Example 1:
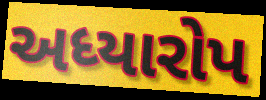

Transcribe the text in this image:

અધ્યારોપ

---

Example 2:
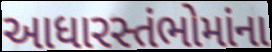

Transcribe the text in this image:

આધારસ્તંભોમાંના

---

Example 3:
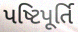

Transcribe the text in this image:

પષ્ટિપૂર્તિ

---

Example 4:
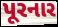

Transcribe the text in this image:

પૂરનાર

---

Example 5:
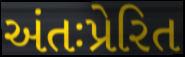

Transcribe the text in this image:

અંતઃપ્રેરિત